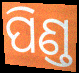
ପିଣ୍ଡ